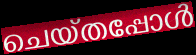
ചെയ്‌തപ്പോൾ